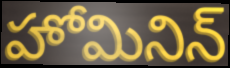
హోమినిన్